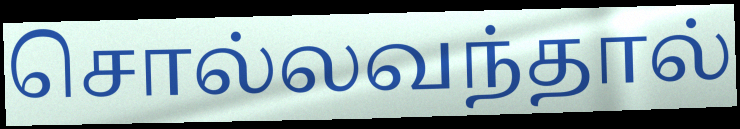
சொல்லவந்தால்